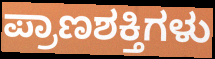
ಪ್ರಾಣಶಕ್ತಿಗಳು